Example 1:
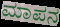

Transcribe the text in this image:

ಮಾಪನ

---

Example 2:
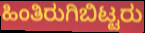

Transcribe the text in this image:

ಹಿಂತಿರುಗಿಬಿಟ್ಟರು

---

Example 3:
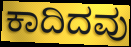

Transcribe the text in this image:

ಕಾದಿದವು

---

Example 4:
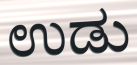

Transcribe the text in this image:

ಉಡು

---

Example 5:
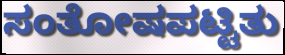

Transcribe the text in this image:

ಸಂತೋಷಪಟ್ಟಿತು